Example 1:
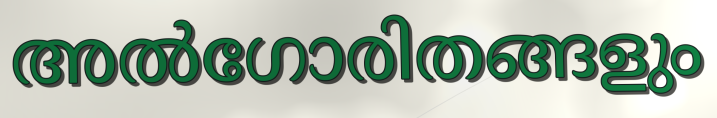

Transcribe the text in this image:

അൽഗോരിതങ്ങളും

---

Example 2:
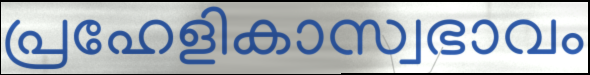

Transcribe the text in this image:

പ്രഹേളികാസ്വഭാവം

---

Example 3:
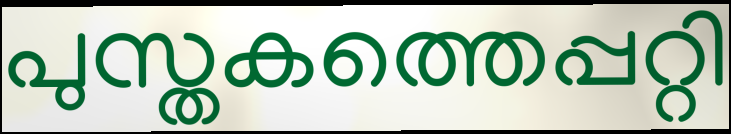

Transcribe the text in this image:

പുസ്തകത്തെപ്പറ്റി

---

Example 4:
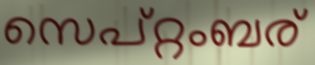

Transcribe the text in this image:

സെപ്റ്റംബര്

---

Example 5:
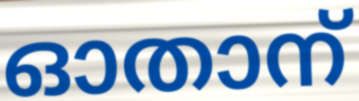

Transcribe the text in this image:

ഓതാന്